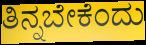
ತಿನ್ನಬೇಕೆಂದು